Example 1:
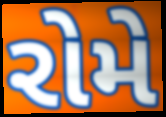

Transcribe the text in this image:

રોમે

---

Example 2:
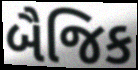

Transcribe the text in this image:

બૈજિક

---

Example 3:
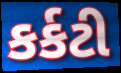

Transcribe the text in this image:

કર્કટી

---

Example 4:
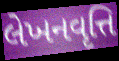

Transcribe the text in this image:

લેખનવૃત્તિ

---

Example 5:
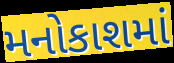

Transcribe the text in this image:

મનોકાશમાં